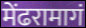
मेंढरामागं